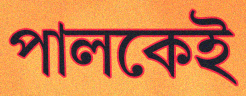
পালকেই